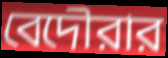
বেদৌরার